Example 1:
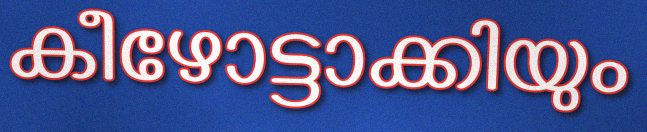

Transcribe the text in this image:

കീഴോട്ടാക്കിയും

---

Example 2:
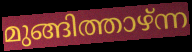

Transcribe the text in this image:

മുങ്ങിത്താഴ്ന്ന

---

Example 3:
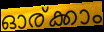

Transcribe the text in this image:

ഓര്ക്കാം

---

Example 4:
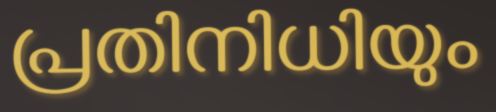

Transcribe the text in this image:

പ്രതിനിധിയും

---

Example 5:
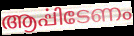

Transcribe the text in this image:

ആൎപ്പിടേണം